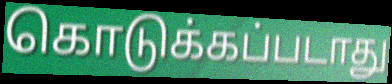
கொடுக்கப்படாது